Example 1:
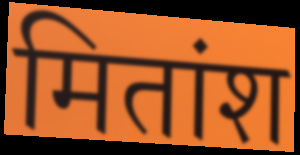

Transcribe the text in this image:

मितांश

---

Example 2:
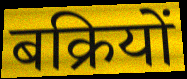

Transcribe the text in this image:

बक्रियों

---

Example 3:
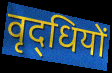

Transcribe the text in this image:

वृद्धियों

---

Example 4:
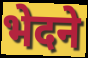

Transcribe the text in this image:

भेदने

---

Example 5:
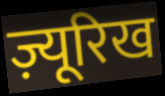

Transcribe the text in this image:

ज़्यूरिख